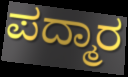
ಪದ್ಮಾರ